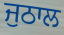
ਜੁਠਾਲ